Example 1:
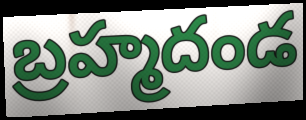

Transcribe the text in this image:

బ్రహ్మదండ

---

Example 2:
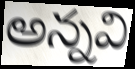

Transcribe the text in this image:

అన్నవి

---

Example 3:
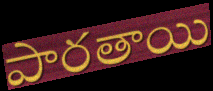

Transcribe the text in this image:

పారతాయి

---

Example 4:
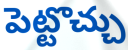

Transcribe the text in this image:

పెట్టొచ్చు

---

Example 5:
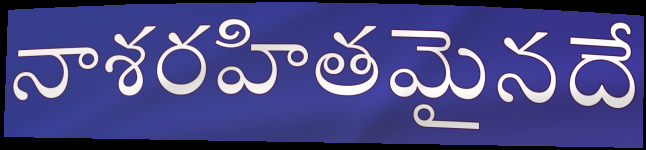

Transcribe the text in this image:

నాశరహితమైనదే